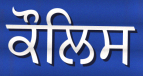
ਕੌਲਿਸ